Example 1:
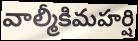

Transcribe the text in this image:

వాల్మీకిమహర్షి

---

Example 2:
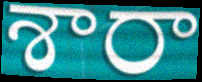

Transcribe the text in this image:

శారా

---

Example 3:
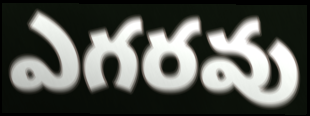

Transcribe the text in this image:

ఎగరవు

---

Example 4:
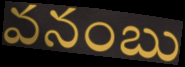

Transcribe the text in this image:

వనంబు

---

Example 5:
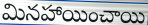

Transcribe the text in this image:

మినహాయించాయి